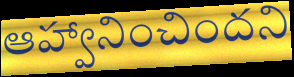
ఆహ్వానించిందని